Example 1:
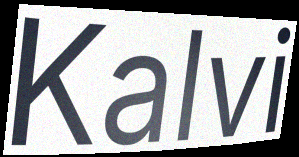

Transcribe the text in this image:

Kalvi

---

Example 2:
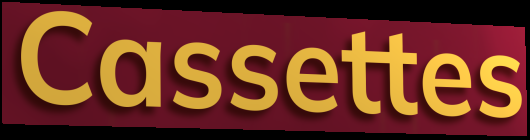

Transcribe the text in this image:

Cassettes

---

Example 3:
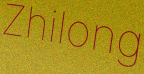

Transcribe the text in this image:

Zhilong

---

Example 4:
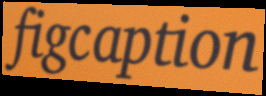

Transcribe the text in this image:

figcaption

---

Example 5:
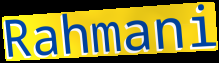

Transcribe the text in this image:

Rahmani